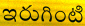
ఇరుగింటి